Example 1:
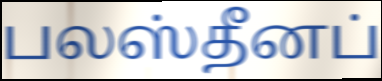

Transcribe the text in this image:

பலஸ்தீனப்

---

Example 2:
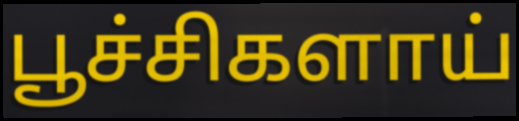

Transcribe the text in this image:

பூச்சிகளாய்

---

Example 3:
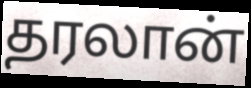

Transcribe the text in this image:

தரலான்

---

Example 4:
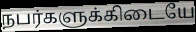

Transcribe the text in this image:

நபர்களுக்கிடையே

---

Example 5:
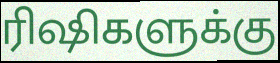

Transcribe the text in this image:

ரிஷிகளுக்கு